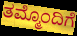
ತಮ್ಮೊಂದಿಗೆ